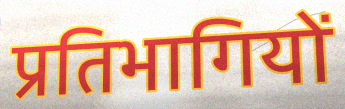
प्रतिभागियों